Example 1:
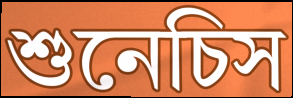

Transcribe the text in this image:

শুনেচিস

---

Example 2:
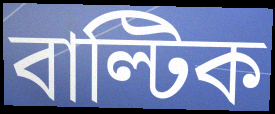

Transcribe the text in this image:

বাল্টিক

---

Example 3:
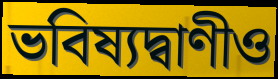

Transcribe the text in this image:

ভবিষ্যদ্বাণীও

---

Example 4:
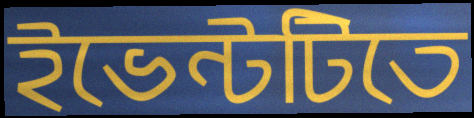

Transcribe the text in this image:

ইভেন্টটিতে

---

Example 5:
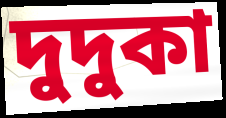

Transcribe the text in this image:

দুদুকা